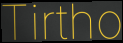
Tirtho